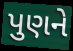
પુણને